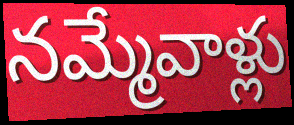
నమ్మేవాళ్లు